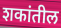
शकांतील